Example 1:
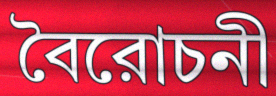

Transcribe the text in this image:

বৈরোচনী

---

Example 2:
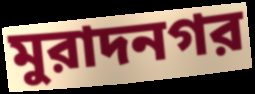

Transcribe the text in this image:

মুরাদনগর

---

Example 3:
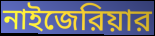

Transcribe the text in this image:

নাইজেরিয়ার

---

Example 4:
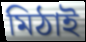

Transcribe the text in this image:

মিঠাই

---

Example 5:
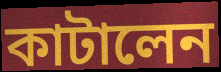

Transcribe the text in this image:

কাটালেন